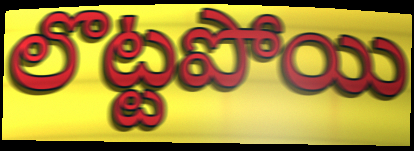
లొట్టపోయి